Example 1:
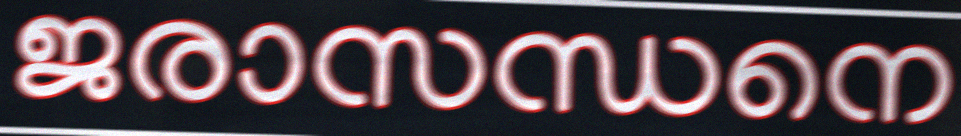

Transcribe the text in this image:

ജരാസന്ധനെ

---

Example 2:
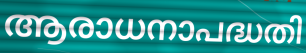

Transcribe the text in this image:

ആരാധനാപദ്ധതി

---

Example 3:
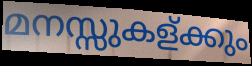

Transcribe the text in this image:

മനസ്സുകള്ക്കും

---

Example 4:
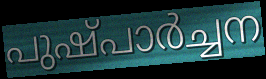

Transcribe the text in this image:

പുഷ്പാർച്ചന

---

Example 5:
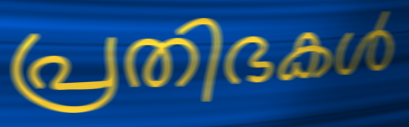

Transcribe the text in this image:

പ്രതിഭകൾ